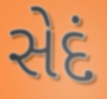
સેદં